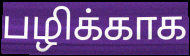
பழிக்காக